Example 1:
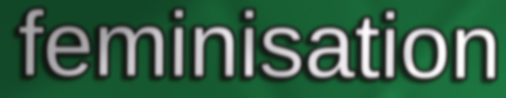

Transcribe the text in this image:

feminisation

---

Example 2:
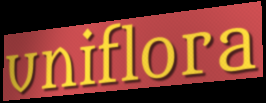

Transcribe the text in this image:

uniflora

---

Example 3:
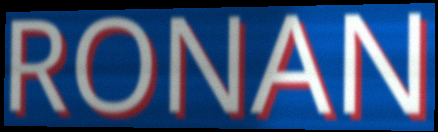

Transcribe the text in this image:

RONAN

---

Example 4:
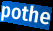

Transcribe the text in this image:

pothe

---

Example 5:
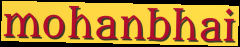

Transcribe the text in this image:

mohanbhai